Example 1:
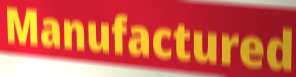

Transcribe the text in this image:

Manufactured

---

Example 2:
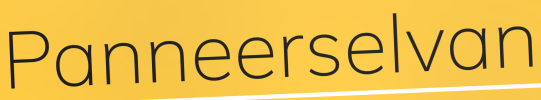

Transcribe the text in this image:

Panneerselvan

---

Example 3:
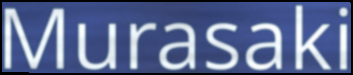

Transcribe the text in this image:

Murasaki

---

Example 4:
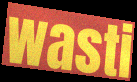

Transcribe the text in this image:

wasti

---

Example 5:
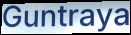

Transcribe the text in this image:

Guntraya